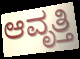
ಆವೃತ್ತಿ